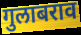
गुलाबराव